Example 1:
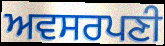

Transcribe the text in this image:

ਅਵਸਰਪਣੀ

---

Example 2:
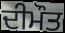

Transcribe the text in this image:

ਦੀਮੌਤ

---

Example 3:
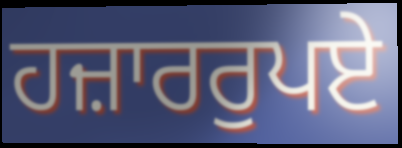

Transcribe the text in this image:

ਹਜ਼ਾਰਰੁਪਏ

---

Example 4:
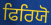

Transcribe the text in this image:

ਫਿਰਿਯੋ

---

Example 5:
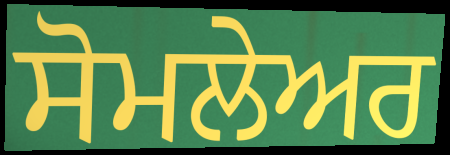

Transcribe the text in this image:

ਸੋਮਲੇਅਰ